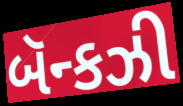
બૅન્કઝી